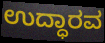
ಉದ್ಧಾರವ